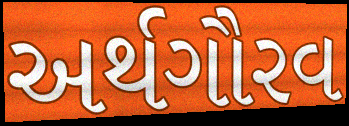
અર્થગૌરવ